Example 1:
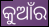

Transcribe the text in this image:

କୁଆଁର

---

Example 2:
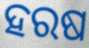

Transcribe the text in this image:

ହରଷ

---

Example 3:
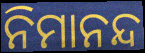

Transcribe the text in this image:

ନିମାନନ୍ଦ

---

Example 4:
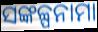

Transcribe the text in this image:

ସଙ୍କଳ୍ପନାମା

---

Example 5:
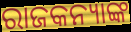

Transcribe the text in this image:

ରାଜକନ୍ୟାଙ୍କ